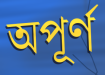
অপূর্ণ